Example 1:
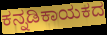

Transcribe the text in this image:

ಕನ್ನಡಿಕಾಯಕದ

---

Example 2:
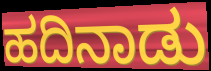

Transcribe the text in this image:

ಹದಿನಾಡು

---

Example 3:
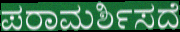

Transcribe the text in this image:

ಪರಾಮರ್ಶಿಸದೆ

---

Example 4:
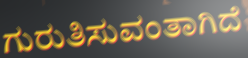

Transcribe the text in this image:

ಗುರುತಿಸುವಂತಾಗಿದೆ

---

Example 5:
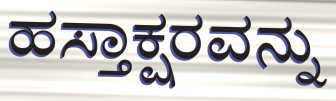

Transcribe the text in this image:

ಹಸ್ತಾಕ್ಷರವನ್ನು